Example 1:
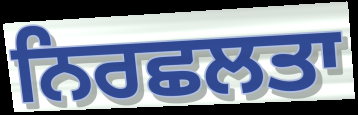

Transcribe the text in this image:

ਨਿਰਛਲਤਾ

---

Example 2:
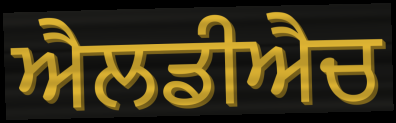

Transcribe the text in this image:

ਐਲਡੀਐਚ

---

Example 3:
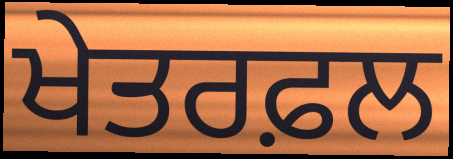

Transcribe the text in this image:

ਖੇਤਰਫ਼ਲ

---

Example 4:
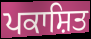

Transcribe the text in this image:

ਪਕਾਸ਼ਿਤ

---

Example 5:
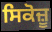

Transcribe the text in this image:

ਸਿਕੋਜ਼ੂ